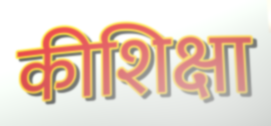
कीशिक्षा